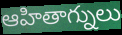
ఆహితాగ్నులు